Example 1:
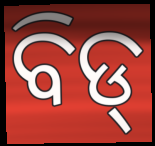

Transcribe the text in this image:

ବିଡ୍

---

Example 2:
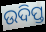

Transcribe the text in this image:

ଉଦିପ୍ତ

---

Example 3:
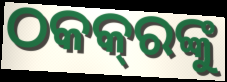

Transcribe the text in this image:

ଠକକ୍‌ରଙ୍କୁ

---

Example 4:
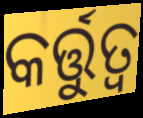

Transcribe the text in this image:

କର୍ତ୍ତୁତ୍ୱ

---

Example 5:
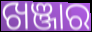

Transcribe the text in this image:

ଖଞ୍ଜାର